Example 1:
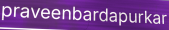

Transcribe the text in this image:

praveenbardapurkar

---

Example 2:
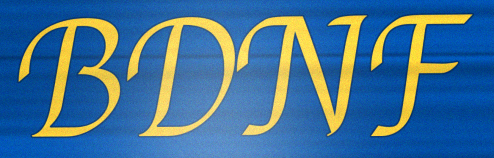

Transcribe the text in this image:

BDNF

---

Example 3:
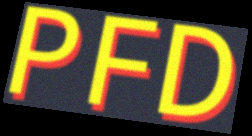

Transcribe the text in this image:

PFD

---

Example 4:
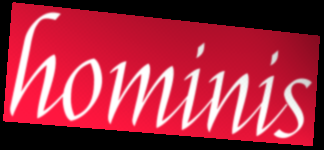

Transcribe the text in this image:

hominis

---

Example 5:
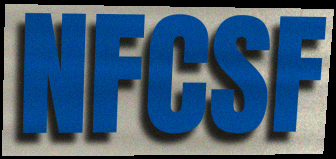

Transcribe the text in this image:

NFCSF